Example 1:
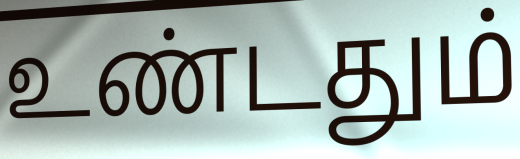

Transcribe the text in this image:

உண்டதும்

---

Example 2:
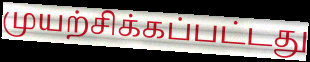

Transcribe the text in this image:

முயற்சிக்கப்பட்டது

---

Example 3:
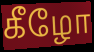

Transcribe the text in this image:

கீழோ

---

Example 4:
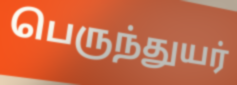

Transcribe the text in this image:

பெருந்துயர்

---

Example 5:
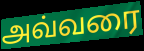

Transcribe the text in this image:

அவ்வரை